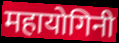
महायोगिनी